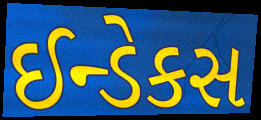
ઈન્ડેકસ